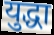
युद्धा